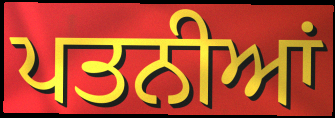
ਪਤਨੀਆਂ